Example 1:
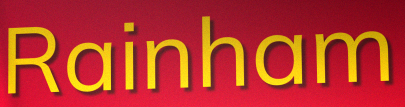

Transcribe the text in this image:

Rainham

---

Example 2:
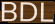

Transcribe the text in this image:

BDL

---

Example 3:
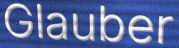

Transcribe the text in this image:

Glauber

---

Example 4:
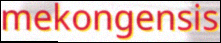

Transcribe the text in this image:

mekongensis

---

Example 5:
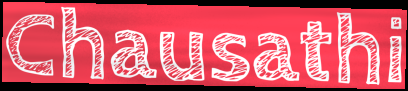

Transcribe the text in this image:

Chausathi